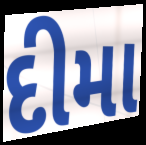
દીમા